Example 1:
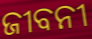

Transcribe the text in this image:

ଜୀବନୀ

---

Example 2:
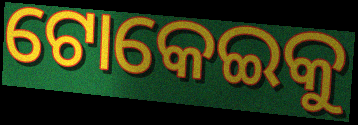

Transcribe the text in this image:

ଟୋକେଇକୁ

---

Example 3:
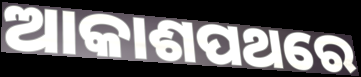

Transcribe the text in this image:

ଆକାଶପଥରେ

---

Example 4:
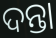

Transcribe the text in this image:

ଦନ୍ତା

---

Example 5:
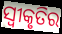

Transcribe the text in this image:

ସ୍ୱୀକୃତିର